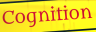
Cognition